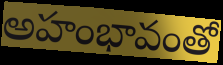
అహంభావంతో